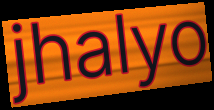
jhalyo